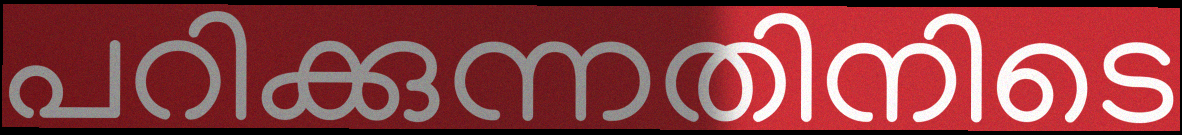
പറിക്കുന്നതിനിടെ